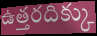
ఉత్తరదిక్కు